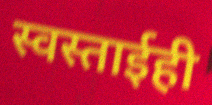
स्वस्ताईही